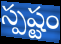
స్పష్టం